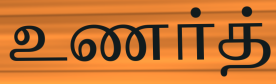
உணர்த்